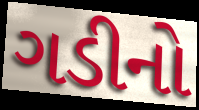
ગડીનો